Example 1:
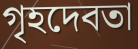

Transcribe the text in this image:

গৃহদেবতা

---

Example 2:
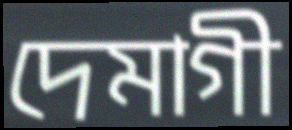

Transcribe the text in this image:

দেমাগী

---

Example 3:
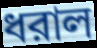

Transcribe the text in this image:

ধরাল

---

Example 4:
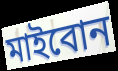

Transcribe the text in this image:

মাইবোন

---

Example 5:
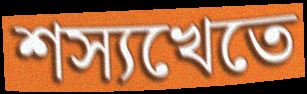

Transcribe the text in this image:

শস্যখেতে